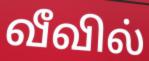
வீவில்